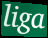
liga